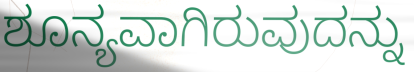
ಶೂನ್ಯವಾಗಿರುವುದನ್ನು